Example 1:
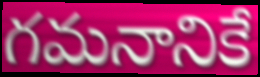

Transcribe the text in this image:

గమనానికే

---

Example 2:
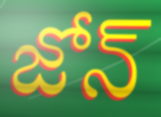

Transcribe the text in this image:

జోన్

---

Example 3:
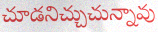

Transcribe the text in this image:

చూడనిచ్చుచున్నావు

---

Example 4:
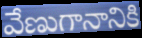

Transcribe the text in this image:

వేణుగానానికి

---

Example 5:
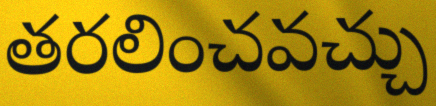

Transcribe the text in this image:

తరలించవచ్చు